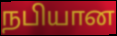
நபியான